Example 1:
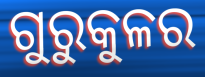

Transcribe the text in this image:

ଗୁରୁକୁଳର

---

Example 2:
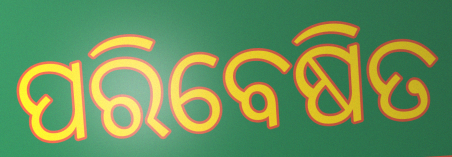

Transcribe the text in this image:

ପରିବେଷିତ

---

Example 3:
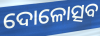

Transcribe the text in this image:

ଦୋଳୋତ୍ସବ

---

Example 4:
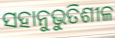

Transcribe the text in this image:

ସହାନୁଭୁତିଶୀଳ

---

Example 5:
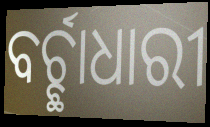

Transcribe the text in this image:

ବର୍ଚ୍ଛାଧାରୀ